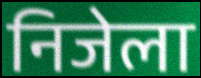
निजेला